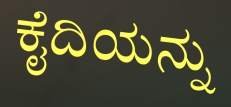
ಕೈದಿಯನ್ನು